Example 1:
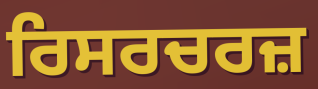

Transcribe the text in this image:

ਰਿਸਰਚਰਜ਼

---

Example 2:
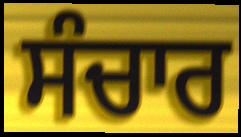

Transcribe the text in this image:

ਸੰਚਾਰ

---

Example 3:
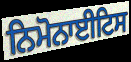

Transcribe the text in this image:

ਨਿਮੋਨਾਈਟਿਸ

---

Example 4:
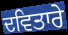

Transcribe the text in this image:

ਦਵਿਤਾਰੇ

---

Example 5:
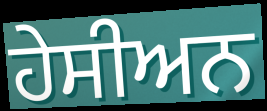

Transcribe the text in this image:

ਹੇਸੀਅਨ